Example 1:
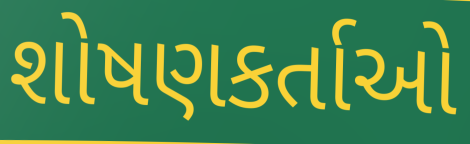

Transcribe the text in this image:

શોષણકર્તાઓ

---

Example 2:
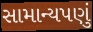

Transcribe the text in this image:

સામાન્યપણું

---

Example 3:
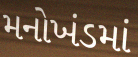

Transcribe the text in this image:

મનોખંડમાં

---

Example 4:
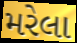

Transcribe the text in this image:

મરેલા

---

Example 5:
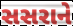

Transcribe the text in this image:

સસરાને